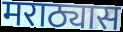
मराठ्यास